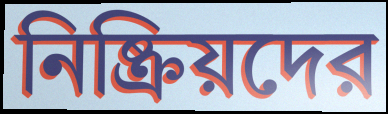
নিষ্ক্রিয়দের